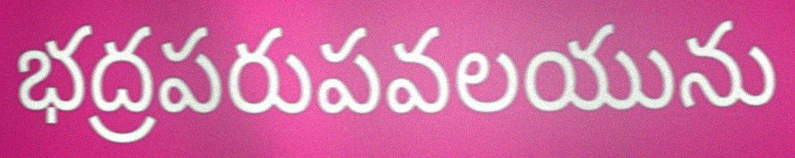
భద్రపరుపవలయును